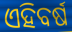
ଏହିବର୍ଷ